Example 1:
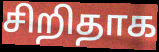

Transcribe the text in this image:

சிறிதாக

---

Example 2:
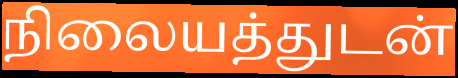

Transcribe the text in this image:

நிலையத்துடன்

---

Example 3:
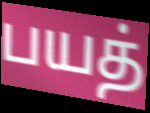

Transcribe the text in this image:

பயத்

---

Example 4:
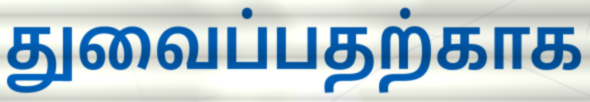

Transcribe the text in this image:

துவைப்பதற்காக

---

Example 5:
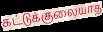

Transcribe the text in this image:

கட்டுக்குலையாத